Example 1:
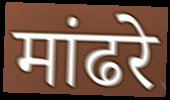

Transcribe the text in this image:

मांढरे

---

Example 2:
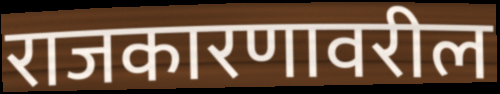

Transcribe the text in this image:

राजकारणावरील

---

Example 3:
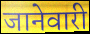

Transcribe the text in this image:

जानेवारी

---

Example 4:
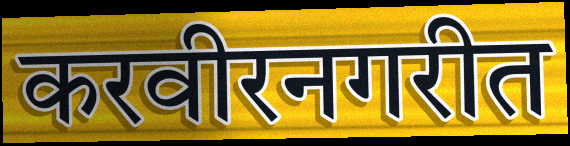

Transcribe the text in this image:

करवीरनगरीत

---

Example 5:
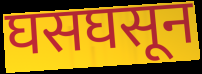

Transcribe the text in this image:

घसघसून